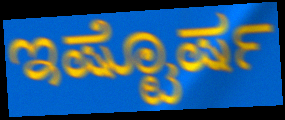
ಇಷ್ಟೊರ್ಷ